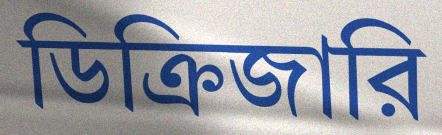
ডিক্রিজারি